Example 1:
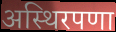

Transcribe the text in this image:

अस्थिरपणा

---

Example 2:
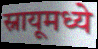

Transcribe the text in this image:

स्नायूमध्ये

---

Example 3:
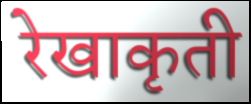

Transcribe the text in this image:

रेखाकृती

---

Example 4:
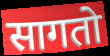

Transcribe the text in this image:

सागतो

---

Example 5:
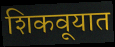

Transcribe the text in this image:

शिकवूयात